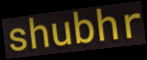
shubhr